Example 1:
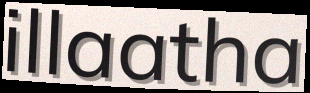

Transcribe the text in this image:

illaatha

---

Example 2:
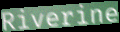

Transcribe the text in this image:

Riverine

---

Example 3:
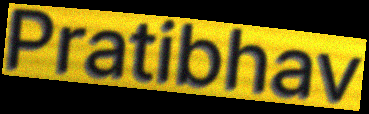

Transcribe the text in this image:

Pratibhav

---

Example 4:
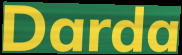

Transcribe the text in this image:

Darda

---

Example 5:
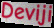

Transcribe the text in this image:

Deviji